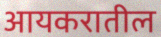
आयकरातील